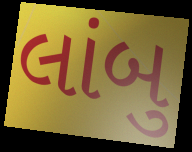
લાંબુ